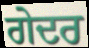
ਗੇਦਰ